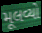
મૂલવ્યો